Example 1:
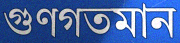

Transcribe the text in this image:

গুণগতমান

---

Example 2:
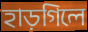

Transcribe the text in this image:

হাড়গিলে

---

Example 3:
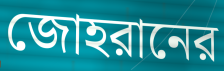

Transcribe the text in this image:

জোহরানের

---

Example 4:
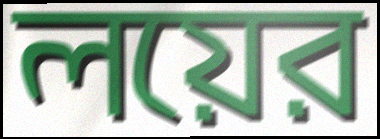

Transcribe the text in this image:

লয়ের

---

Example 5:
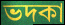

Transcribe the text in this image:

ভদকা